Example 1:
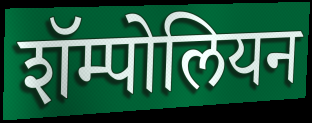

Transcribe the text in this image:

शॅम्पोलियन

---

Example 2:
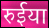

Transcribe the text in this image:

रुईया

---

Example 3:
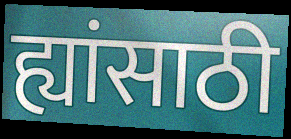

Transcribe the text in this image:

ह्यांसाठी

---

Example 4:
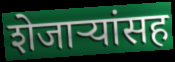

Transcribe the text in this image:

शेजाऱ्यांसह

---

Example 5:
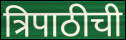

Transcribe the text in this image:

त्रिपाठीची